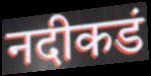
नदीकडं